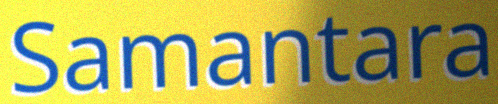
Samantara